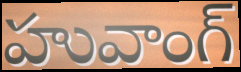
హువాంగ్